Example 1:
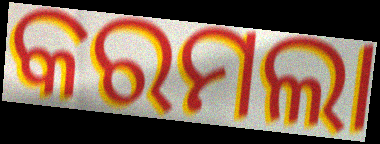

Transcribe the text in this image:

କରମଲା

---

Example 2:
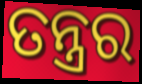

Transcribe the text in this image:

ତନ୍ତ୍ରର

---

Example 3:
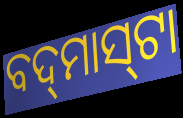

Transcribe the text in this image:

ବଦ୍‌ମାସ୍‌ଟା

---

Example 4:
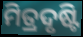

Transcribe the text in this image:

ମିତ୍ରଦୃଷ୍ଟି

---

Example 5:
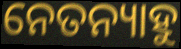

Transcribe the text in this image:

ନେତନ୍ୟାହୁ